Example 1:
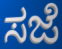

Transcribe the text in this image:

ಸಜೆ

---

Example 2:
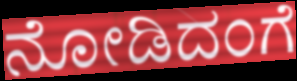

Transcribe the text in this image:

ನೋಡಿದಂಗೆ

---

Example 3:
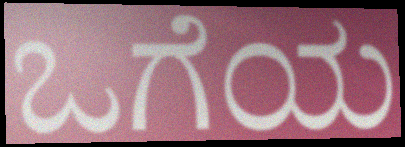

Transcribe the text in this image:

ಒಗೆಯ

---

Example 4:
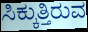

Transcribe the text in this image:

ಸಿಕ್ಕುತ್ತಿರುವ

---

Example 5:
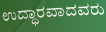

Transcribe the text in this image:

ಉದ್ಧಾರವಾದವರು